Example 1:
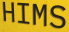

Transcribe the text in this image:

HIMS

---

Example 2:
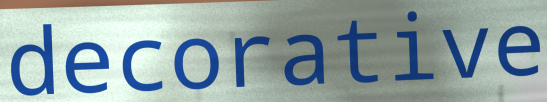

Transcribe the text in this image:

decorative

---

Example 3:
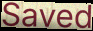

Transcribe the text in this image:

Saved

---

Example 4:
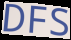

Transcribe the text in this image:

DFS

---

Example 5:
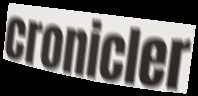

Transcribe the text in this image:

cronicler